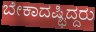
ಬೇಕಾದಷ್ಟಿದ್ದರು